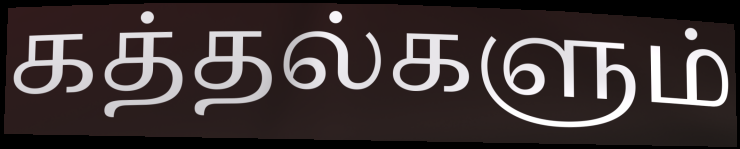
கத்தல்களும்